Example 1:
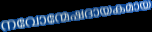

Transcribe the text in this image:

നവോന്മേഷദായകമായ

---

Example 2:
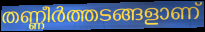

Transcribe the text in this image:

തണ്ണീർത്തടങ്ങളാണ്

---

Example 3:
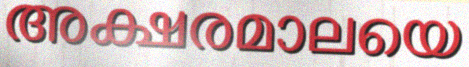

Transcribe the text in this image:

അക്ഷരമാലയെ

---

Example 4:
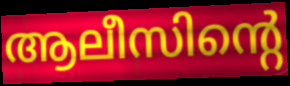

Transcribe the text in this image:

ആലീസിന്റെ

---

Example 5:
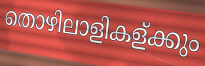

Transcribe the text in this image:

തൊഴിലാളികള്ക്കും